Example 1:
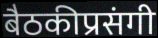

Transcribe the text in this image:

बैठकीप्रसंगी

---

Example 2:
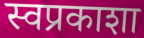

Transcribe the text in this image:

स्वप्रकाशा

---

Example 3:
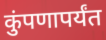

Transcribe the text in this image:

कुंपणापर्यंत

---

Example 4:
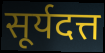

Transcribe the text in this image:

सूर्यदत्त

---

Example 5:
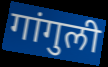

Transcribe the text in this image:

गांगुली